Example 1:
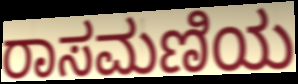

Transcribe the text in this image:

ರಾಸಮಣಿಯ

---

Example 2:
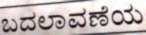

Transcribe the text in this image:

ಬದಲಾವಣೆಯ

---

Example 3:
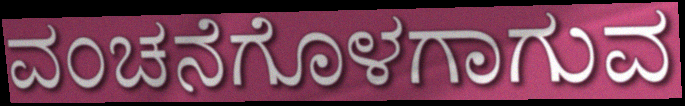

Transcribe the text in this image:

ವಂಚನೆಗೊಳಗಾಗುವ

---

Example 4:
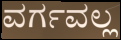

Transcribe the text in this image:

ವರ್ಗವಲ್ಲ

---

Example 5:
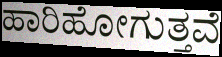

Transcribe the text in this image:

ಹಾರಿಹೋಗುತ್ತವೆ